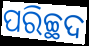
ପରିଚ୍ଛଦ